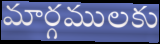
మార్గములకు